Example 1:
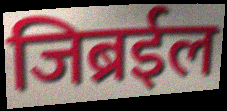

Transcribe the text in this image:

जिब्रईल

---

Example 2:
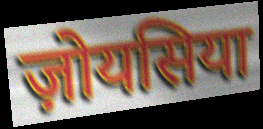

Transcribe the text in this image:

ज़ोयसिया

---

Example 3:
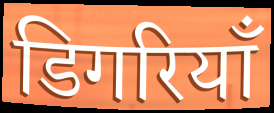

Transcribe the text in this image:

डिगरियाँ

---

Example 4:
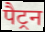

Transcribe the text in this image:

पैट्रन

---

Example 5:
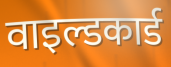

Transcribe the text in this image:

वाइल्डकार्ड